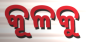
କୂଳକୁ